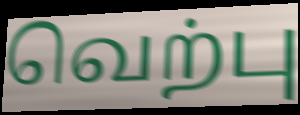
வெற்பு